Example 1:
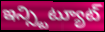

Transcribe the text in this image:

ఇన్స్టిట్యూట్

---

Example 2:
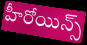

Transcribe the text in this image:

హీరోయిన్స్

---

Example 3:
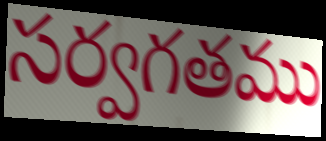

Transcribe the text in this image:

సర్వగతము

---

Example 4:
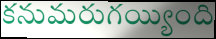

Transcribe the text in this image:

కనుమరుగయ్యింది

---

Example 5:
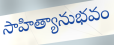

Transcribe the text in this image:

సాహిత్యానుభవం